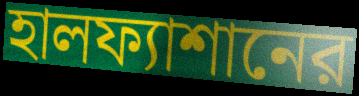
হালফ্যাশানের